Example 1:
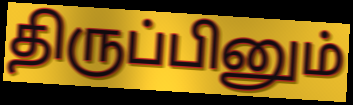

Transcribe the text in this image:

திருப்பினும்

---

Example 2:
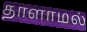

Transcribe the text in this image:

தாளாமல்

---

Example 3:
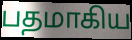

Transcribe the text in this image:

பதமாகிய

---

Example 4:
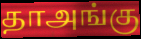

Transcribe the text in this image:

தாஅங்கு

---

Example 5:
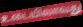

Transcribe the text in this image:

உடையிலாவது